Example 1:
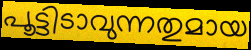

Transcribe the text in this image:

പൂട്ടിടാവുന്നതുമായ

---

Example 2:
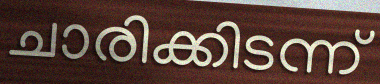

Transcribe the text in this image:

ചാരിക്കിടന്ന്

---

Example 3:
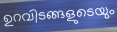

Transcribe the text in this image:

ഉറവിടങ്ങളുടെയും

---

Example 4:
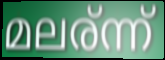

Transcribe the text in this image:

മലര്ന്ന്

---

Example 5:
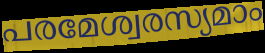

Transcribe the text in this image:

പരമേശ്വരസ്യമാം